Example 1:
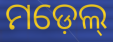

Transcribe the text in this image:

ମଡ଼େଲ୍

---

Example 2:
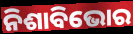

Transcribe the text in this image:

ନିଶାବିଭୋର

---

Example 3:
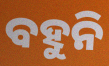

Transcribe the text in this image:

ବହୁନି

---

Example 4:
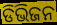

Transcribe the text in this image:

ଡିଭିଜନ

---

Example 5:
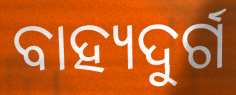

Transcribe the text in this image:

ବାହ୍ୟଦୁର୍ଗ